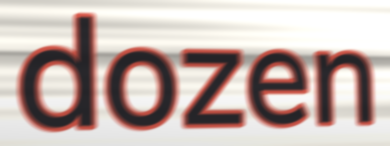
dozen